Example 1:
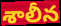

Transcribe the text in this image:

శాలీన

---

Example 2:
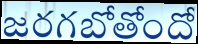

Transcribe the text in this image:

జరగబోతోందో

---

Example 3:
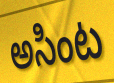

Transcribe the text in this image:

అసింట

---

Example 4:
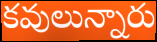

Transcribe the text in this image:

కవులున్నారు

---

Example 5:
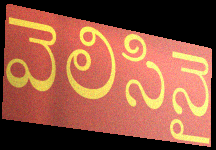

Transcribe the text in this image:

వెలిసినై